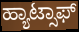
ಹ್ಯಾಟ್ಸಾಫ್